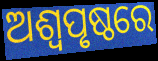
ଅଶ୍ୱପୃଷ୍ଠରେ